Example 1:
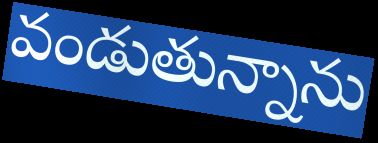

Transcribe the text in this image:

వండుతున్నాను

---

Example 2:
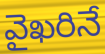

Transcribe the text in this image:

వైఖరినే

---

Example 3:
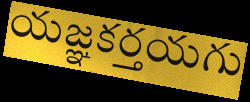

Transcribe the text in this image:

యజ్ఞకర్తయగు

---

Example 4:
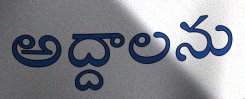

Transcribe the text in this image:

అద్దాలను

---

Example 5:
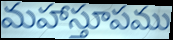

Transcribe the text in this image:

మహాస్తూపము